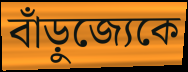
বাঁড়ুজ্যেকে